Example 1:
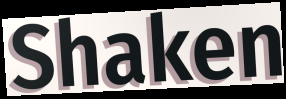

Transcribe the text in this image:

Shaken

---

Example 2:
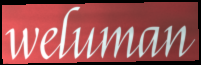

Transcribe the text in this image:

weluman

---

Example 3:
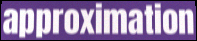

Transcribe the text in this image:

approximation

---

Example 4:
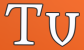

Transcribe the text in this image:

Tu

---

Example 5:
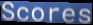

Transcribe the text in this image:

Scores